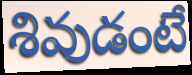
శివుడంటే